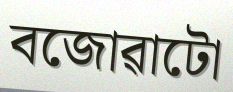
বজোৱাটো